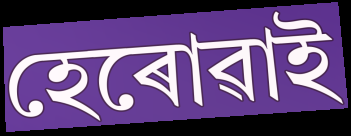
হেৰোৱাই